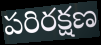
పరిరక్షణ